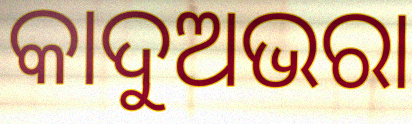
କାଦୁଅଭରା